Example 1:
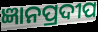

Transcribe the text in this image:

ଜ୍ଞାନପ୍ରଦୀପ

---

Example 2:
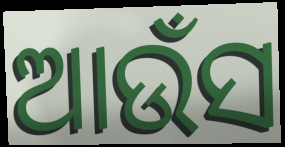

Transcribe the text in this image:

ଆଉଁସ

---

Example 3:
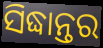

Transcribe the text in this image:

ସିଦ୍ଧାନ୍ତର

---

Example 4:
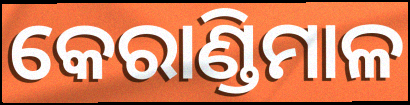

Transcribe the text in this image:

କେରାଣ୍ଡିମାଳ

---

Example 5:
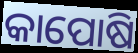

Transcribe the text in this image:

କାପୋଷି